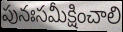
పునఃసమీక్షించాలి